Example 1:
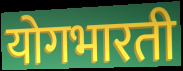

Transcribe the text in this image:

योगभारती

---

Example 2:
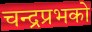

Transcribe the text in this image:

चन्द्रप्रभको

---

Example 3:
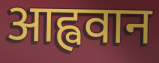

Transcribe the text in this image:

आह्ववान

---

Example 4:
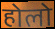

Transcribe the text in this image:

होलो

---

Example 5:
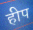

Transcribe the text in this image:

हीप